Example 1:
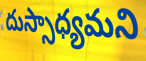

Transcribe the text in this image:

దుస్సాధ్యమని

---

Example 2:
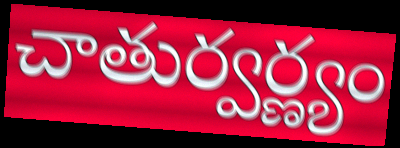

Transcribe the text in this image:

చాతుర్వర్ణ్యం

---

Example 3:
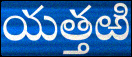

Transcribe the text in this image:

యత్తఱి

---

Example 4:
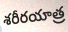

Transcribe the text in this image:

శరీరయాత్ర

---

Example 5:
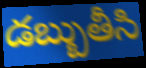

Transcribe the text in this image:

డబ్బుతీసి